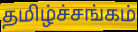
தமிழ்ச்சங்கம்